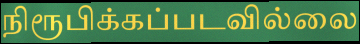
நிரூபிக்கப்படவில்லை